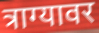
त्राग्यावर